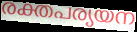
രക്തപര്യയന